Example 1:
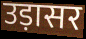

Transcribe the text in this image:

उड़ासर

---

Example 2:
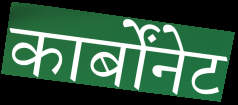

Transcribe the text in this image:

कार्बोंनेट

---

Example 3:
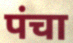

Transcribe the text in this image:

पंचा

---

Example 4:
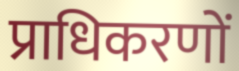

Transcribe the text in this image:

प्राधिकरणों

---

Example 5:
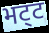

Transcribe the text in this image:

भट्‌ट